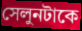
সেলুনটাকে